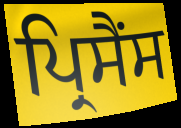
ਪ੍ਰਿਸੈਂਸ